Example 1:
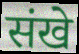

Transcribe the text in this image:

संखे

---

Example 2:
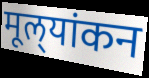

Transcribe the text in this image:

मूल्यांकन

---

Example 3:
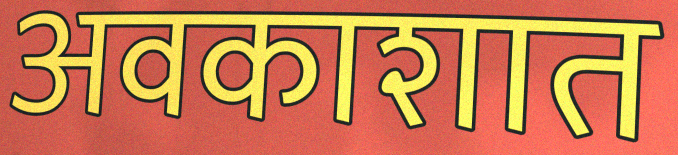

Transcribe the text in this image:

अवकाशात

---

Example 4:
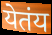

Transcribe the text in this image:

येतंय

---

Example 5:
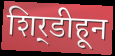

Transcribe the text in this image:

शिर्डीहून